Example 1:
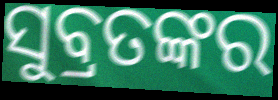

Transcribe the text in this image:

ସୁବ୍ରତଙ୍କର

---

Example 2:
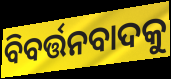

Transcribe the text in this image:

ବିବର୍ତ୍ତନବାଦକୁ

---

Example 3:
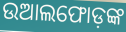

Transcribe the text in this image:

ଉଆଲଫୋଡ଼ଙ୍କ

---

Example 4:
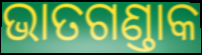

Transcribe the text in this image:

ଭାତଗଣ୍ଡାକ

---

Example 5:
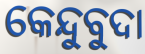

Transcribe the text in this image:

କେନ୍ଦୁବୁଦା